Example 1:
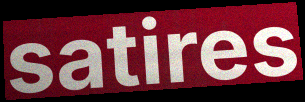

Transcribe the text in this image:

satires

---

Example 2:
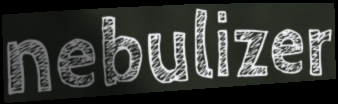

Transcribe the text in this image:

nebulizer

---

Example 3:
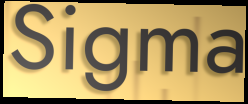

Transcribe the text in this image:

Sigma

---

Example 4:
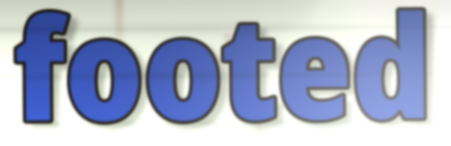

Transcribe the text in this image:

footed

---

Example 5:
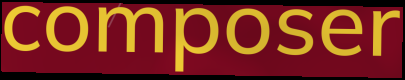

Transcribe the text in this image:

composer